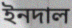
ইনদাল